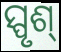
ସ୍ପୃଶ୍